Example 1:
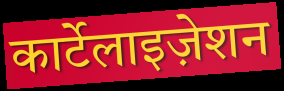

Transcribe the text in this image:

कार्टेलाइज़ेशन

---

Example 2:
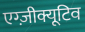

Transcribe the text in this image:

एग्ज़ीक्यूटिव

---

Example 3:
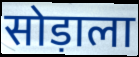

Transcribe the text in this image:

सोड़ाला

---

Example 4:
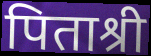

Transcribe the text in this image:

पिताश्री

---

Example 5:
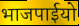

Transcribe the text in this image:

भाजपाईयो